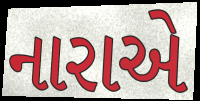
નારાએ